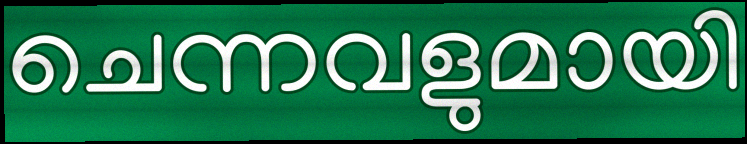
ചെന്നവളുമായി